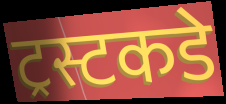
ट्रस्टकडे